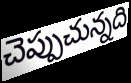
చెప్పుచున్నది